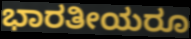
ಭಾರತೀಯರೂ